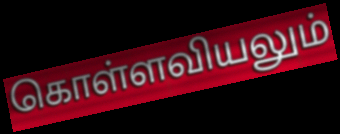
கொள்ளவியலும்